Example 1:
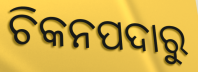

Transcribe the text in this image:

ଚିକନପଦାରୁ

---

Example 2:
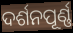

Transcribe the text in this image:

ଦର୍ଶନପୂର୍ଣ୍ଣ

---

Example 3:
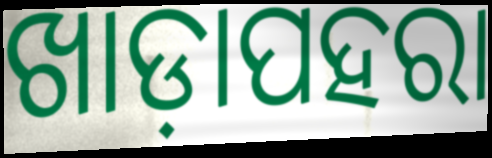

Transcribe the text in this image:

ଖାଡ଼ାପହରା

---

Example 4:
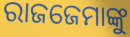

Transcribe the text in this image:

ରାଜଜେମାଙ୍କୁ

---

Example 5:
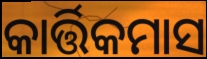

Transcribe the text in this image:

କାର୍ତ୍ତିକମାସ